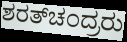
ಶರತ್‌ಚಂದ್ರರು